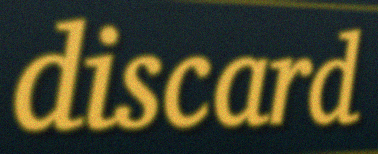
discard